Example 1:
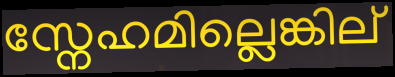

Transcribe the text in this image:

സ്നേഹമില്ലെങ്കില്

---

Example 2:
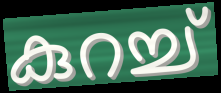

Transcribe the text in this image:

കുറച്ച്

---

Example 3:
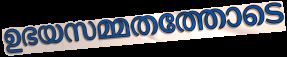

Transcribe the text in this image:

ഉഭയസമ്മതത്തോടെ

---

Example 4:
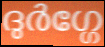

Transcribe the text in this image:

ദുർഗ്ഗേ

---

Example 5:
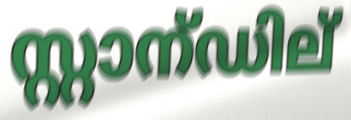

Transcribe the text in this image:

സ്റ്റാന്ഡില്